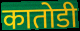
कातोडी